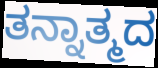
ತನ್ನಾತ್ಮದ